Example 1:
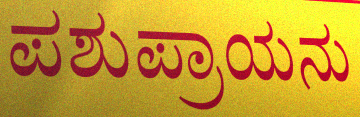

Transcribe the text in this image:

ಪಶುಪ್ರಾಯನು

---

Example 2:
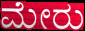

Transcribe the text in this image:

ಮೇರು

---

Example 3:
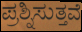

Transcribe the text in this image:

ಪ್ರಶ್ನಿಸುತ್ತವೆ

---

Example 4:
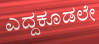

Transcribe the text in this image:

ಎದ್ದಕೂಡಲೇ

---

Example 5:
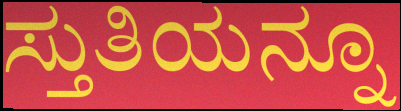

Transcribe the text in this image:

ಸ್ತುತಿಯನ್ನೂ